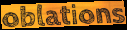
oblations